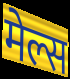
मेल्स